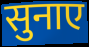
सुनाए